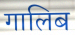
गालिब